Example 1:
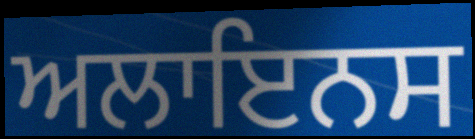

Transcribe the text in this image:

ਅਲਾਇਨਸ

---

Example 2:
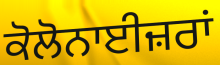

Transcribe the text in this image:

ਕੋਲੋਨਾਈਜ਼ਰਾਂ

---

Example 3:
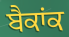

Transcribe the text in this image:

ਬੈਕਾਂਕ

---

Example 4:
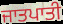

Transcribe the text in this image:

ਜਾਤਪਾਤੀ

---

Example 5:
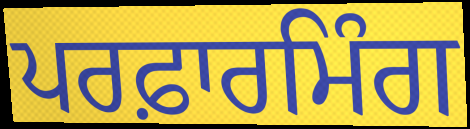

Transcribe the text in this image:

ਪਰਫ਼ਾਰਮਿੰਗ